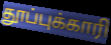
தூப்புக்காரி